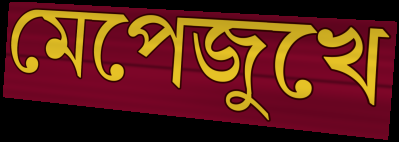
মেপেজুখে